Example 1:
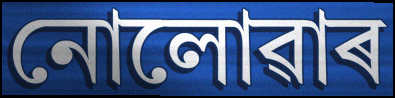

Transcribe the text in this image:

নোলোৱাৰ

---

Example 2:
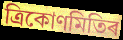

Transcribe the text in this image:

ত্ৰিকোণমিতিৰ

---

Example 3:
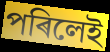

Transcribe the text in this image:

পৰিলেই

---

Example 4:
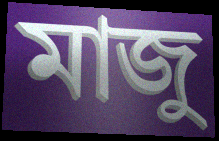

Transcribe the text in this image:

মাজু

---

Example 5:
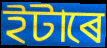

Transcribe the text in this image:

ইটাৰে